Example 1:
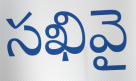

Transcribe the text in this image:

సఖివై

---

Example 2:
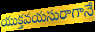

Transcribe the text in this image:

యుక్తవయసురాగానే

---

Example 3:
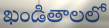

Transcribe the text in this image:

ఖండితాలలో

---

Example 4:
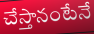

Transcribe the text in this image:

చేస్తానంటేనే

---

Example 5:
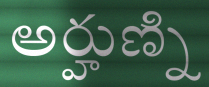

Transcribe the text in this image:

అర్హుణ్ని